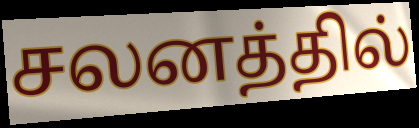
சலனத்தில்